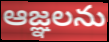
ఆజ్ఞలను